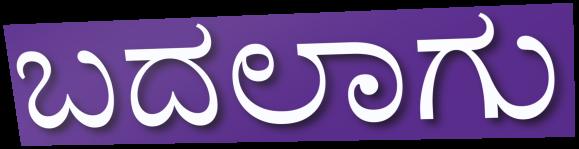
ಬದಲಾಗು